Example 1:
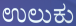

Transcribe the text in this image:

ಉಲುಕು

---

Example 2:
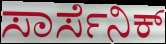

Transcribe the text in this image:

ಸಾರ್ಸೆನಿಕ್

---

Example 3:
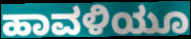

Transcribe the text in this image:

ಹಾವಳಿಯೂ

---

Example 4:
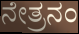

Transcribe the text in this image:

ನೇತ್ರನಂ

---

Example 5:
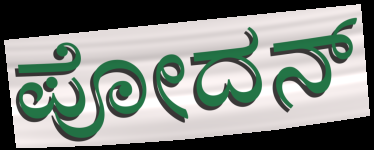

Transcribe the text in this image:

ಪೋದನ್